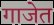
गाजेत